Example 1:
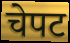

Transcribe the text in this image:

चेपट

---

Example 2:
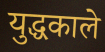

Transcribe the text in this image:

युद्धकाले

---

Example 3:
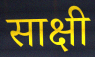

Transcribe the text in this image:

साक्षी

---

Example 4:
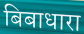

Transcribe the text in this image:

बिबाधारा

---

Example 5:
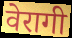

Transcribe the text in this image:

वेरागी